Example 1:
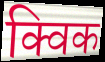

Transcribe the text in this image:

क्विक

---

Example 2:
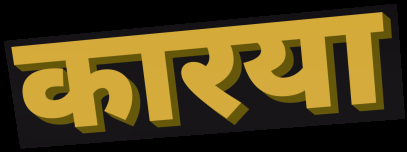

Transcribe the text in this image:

कारया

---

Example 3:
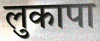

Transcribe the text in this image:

लुकापा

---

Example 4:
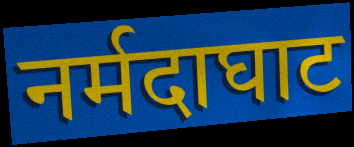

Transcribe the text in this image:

नर्मदाघाट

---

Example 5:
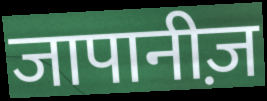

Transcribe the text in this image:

जापानीज़